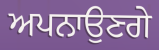
ਅਪਨਾਉਣਗੇ